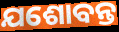
ଯଶୋବନ୍ତ